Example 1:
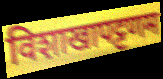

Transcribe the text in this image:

विशाखापट्टणम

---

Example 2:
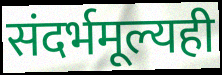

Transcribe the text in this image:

संदर्भमूल्यही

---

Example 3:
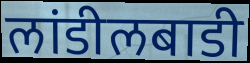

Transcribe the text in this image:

लांडीलबाडी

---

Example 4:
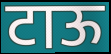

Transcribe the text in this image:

टाऊ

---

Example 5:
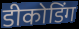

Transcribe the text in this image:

डीकोडिंग